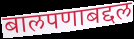
बालपणाबद्दल